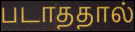
படாததால்